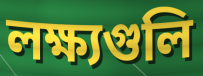
লক্ষ্যগুলি